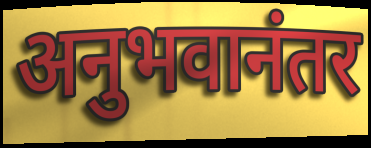
अनुभवानंतर